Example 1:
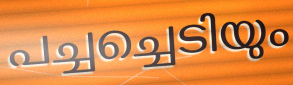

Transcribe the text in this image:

പച്ചച്ചെടിയും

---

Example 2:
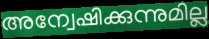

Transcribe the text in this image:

അന്വേഷിക്കുന്നുമില്ല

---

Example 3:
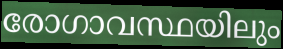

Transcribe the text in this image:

രോഗാവസ്ഥയിലും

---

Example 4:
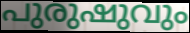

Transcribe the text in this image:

പുരുഷുവും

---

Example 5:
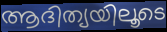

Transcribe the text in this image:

ആദിത്യയിലൂടെ